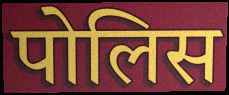
पोलिस